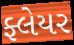
ફ્લેયર